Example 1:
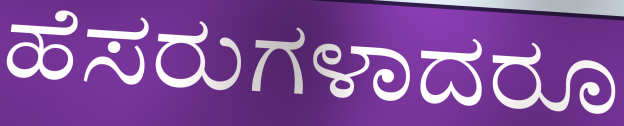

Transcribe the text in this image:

ಹೆಸರುಗಳಾದರೂ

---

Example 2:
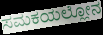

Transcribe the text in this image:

ಸಮಕಯಲ್ಲೋನ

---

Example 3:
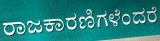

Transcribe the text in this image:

ರಾಜಕಾರಣಿಗಳೆಂದರೆ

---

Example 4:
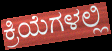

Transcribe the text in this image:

ಕ್ರಿಯೆಗಳಲ್ಲಿ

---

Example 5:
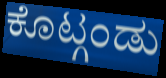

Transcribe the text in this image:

ಕೊಟ್ಗಂಡು